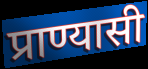
प्राण्यासी